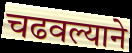
चढवल्याने